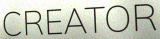
CREATOR